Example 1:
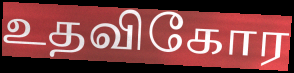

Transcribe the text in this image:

உதவிகோர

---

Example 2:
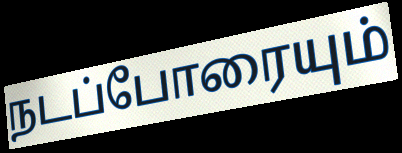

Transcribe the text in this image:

நடப்போரையும்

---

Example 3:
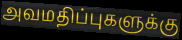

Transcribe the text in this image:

அவமதிப்புகளுக்கு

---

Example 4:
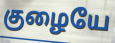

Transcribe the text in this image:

குழையே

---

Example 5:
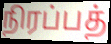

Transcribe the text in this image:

நிரப்பத்